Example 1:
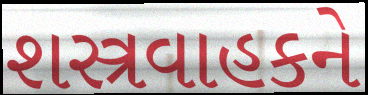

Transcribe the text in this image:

શસ્ત્રવાહકને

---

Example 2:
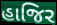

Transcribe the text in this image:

હાજિર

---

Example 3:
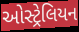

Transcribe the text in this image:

ઓસ્ટ્રેલિયન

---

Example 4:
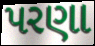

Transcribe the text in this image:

પરણા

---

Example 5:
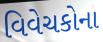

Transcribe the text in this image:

વિવેચકોના